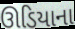
ઊડિયાના